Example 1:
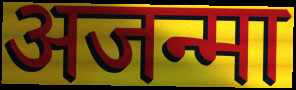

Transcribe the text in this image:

अजन्मा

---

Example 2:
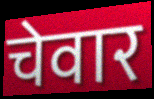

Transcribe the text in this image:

चेवार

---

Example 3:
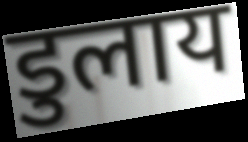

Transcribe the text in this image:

डुलाय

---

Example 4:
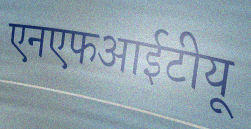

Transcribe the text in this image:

एनएफआईटीयू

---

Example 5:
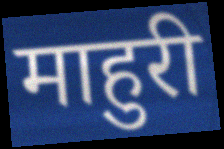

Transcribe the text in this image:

माहुरी